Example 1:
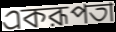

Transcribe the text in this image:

একরূপতা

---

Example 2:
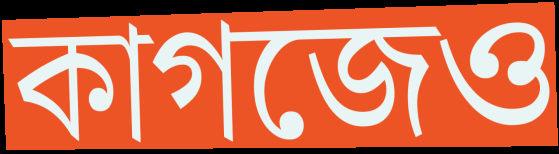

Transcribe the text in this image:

কাগজেও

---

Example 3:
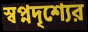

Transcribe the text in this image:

স্বপ্নদৃশ্যের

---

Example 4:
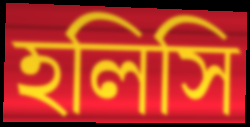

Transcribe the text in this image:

হলিসি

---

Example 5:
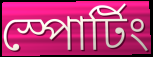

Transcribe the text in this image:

স্পোর্টিং